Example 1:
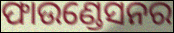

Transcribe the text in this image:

ଫାଉଣ୍ଡେସନର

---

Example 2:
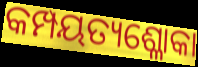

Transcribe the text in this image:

କମ୍ପୟତ୍ୟଶ୍ଳୋକା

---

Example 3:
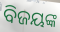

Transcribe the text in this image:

ବିଜୟଙ୍କ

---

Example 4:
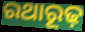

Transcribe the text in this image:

ରଥାରୂଢ଼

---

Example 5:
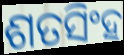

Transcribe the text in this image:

ଶତସିଂହ